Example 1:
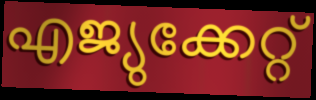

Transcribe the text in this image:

എജ്യുക്കേറ്റ്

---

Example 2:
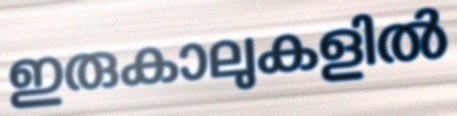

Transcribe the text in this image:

ഇരുകാലുകളിൽ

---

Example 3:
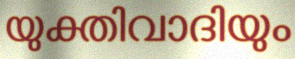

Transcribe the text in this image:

യുക്തിവാദിയും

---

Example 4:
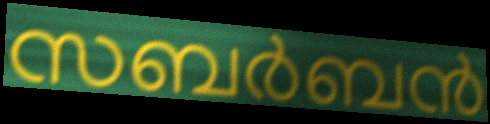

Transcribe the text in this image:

സബർബൻ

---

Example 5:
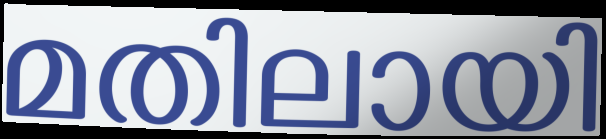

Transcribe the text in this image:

മതിലായി